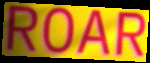
ROAR